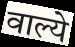
वाल्ये